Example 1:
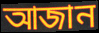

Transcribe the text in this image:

আজান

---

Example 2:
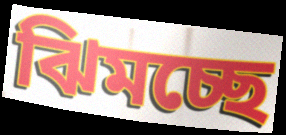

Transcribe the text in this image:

ঝিমচ্ছে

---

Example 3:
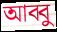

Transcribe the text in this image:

আব্বু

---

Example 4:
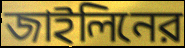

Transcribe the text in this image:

জাইলিনের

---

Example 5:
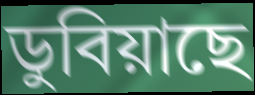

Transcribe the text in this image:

ডুবিয়াছে